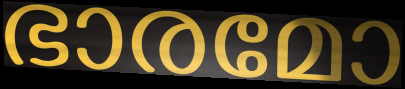
ഭാരമോ